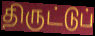
திருட்டுப்